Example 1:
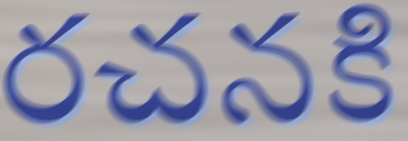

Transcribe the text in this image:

రచనకి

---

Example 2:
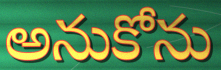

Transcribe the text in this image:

అనుకోను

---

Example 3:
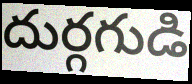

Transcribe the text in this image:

దుర్గగుడి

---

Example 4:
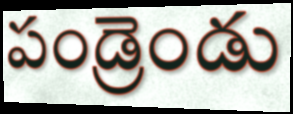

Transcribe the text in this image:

పండ్రెండు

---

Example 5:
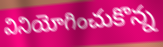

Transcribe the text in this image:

వినియోగించుకొన్న